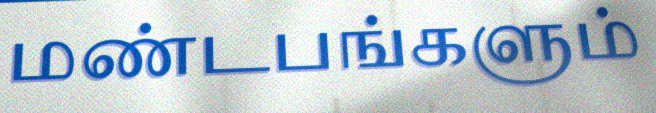
மண்டபங்களும்